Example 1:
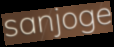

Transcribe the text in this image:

sanjoge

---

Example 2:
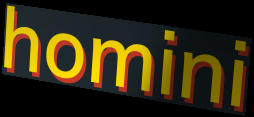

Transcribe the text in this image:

homini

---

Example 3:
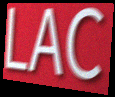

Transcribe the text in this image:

LAC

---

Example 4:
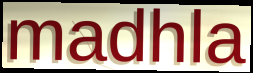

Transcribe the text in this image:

madhla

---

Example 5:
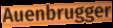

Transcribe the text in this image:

Auenbrugger